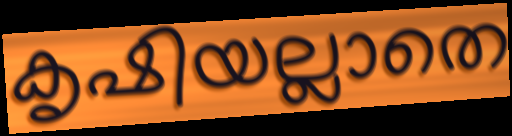
കൃഷിയല്ലാതെ